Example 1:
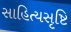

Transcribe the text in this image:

સાહિત્યસૃષ્ટિ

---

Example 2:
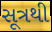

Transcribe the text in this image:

સૂત્રથી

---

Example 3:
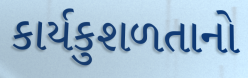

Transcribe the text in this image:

કાર્યકુશળતાનો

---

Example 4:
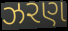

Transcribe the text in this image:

ઝરણ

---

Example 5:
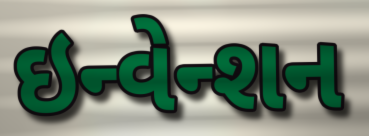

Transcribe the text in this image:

ઇન્વેન્શન